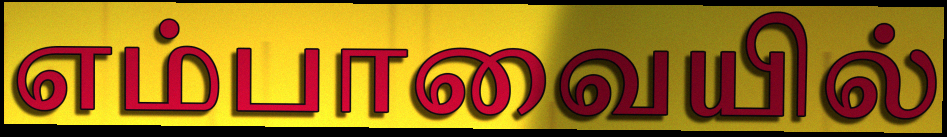
எம்பாவையில்